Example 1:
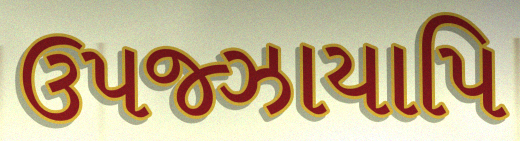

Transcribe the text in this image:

ઉપજ્ઝાયાપિ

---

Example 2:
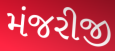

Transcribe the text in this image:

મંજરીજી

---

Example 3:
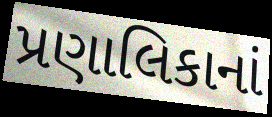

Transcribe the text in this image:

પ્રણાલિકાનાં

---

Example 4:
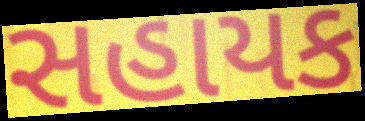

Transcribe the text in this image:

સહાયક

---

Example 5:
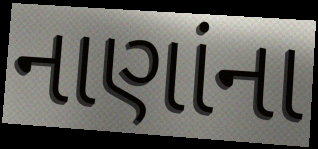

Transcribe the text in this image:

નાણાંના